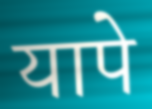
यापे